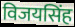
विजयसिंह